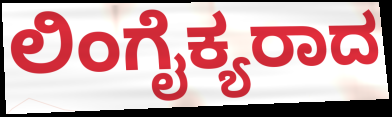
ಲಿಂಗೈಕ್ಯರಾದ